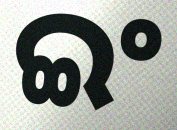
ଇଂ